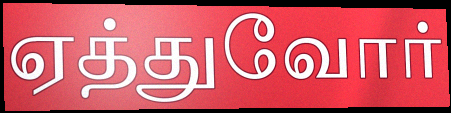
ஏத்துவோர்